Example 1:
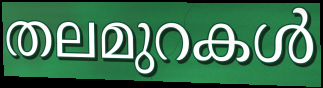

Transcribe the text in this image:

തലമുറകൾ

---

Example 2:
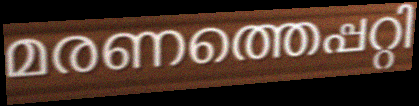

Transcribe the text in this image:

മരണത്തെപ്പറ്റി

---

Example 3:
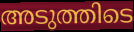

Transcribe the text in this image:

അടുത്തിടെ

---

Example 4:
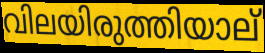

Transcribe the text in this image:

വിലയിരുത്തിയാല്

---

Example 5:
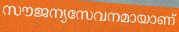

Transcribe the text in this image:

സൗജന്യസേവനമായാണ്